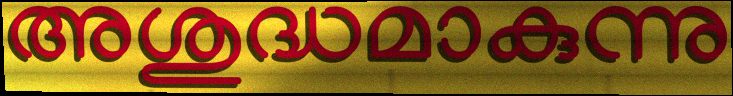
അശുദ്ധമാകുന്നു